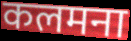
कलमना